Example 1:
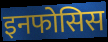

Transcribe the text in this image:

इनफोसिस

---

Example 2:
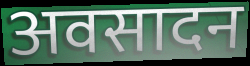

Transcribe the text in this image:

अवसादन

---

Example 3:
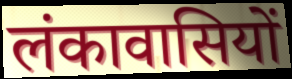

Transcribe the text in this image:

लंकावासियों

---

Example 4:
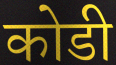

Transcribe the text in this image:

कोडी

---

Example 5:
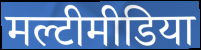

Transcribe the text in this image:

मल्टीमीडिया